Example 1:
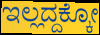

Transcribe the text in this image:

ಇಲ್ಲದ್ದಕ್ಕೋ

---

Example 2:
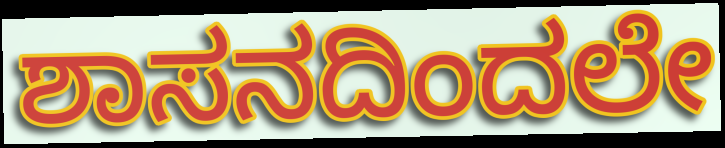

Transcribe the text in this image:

ಶಾಸನದಿಂದಲೇ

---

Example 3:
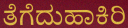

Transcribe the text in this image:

ತೆಗೆದುಹಾಕಿರಿ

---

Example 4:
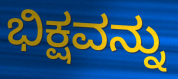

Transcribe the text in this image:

ಭಿಕ್ಷವನ್ನು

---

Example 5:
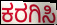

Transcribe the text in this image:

ಕರಗಿಸಿ